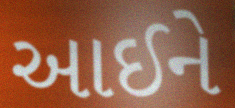
આઈને